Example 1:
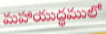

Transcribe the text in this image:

మహాయుద్ధములో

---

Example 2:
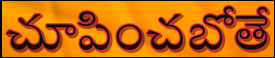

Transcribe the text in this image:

చూపించబోతే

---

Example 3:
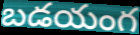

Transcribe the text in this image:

బడయంగ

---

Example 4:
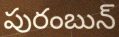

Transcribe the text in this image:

పురంబున్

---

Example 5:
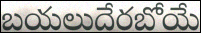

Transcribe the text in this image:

బయలుదేరబోయే